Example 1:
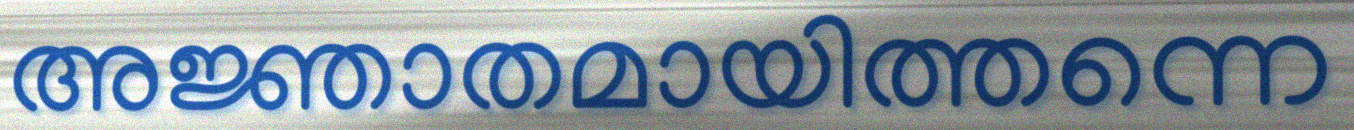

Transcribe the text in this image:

അജ്ഞാതമായിത്തന്നെ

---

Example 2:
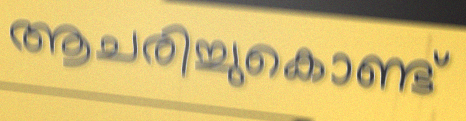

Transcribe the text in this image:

ആചരിച്ചുകൊണ്ട്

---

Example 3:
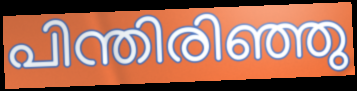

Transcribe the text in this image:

പിന്തിരിഞ്ഞു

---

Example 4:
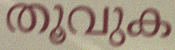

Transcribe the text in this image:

തൂവുക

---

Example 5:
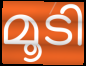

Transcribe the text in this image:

മൂടി